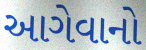
આગેવાનો